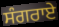
ਸੰਗਰਾਏ